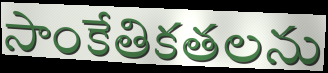
సాంకేతికతలను